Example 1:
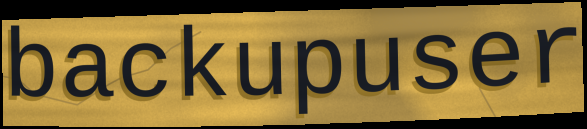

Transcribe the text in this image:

backupuser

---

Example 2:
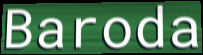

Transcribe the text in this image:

Baroda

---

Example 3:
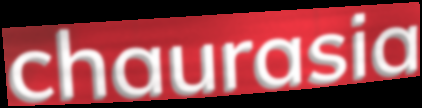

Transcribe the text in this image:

chaurasia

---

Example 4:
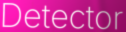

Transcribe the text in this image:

Detector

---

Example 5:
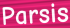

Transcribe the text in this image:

Parsis